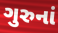
ગુરુનાં